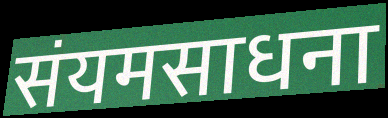
संयमसाधना